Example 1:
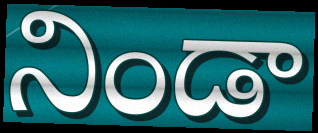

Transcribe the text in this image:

నిండా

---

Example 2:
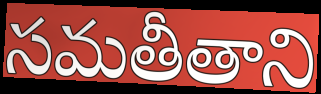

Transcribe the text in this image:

సమతీతాని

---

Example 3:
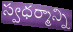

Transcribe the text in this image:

స్వధర్మాన్ని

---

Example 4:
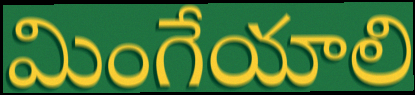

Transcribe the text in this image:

మింగేయాలి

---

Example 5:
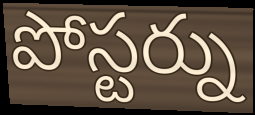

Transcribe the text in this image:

పోస్టర్ను